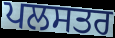
ਪਲਸਤਰ